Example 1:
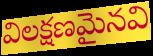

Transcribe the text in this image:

విలక్షణమైనవి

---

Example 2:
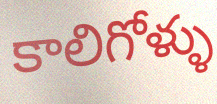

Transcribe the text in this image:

కాలిగోళ్ళు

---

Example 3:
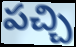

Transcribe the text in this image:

పచ్చి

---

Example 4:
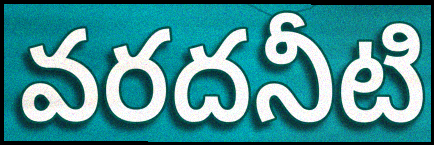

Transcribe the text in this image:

వరదనీటి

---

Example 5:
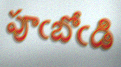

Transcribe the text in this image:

పూఁబోఁడి